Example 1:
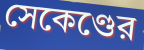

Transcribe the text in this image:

সেকেণ্ডের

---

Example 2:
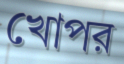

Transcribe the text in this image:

খোপর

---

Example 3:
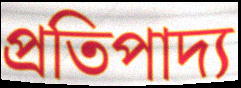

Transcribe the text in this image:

প্রতিপাদ্য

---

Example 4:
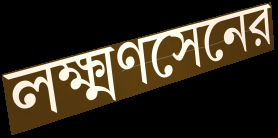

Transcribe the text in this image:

লক্ষ্মণসেনের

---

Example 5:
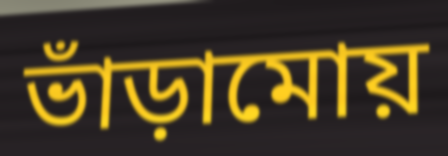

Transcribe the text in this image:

ভাঁড়ামোয়